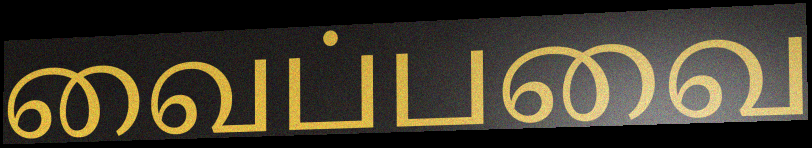
வைப்பவை